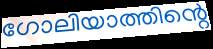
ഗോലിയാത്തിന്റെ